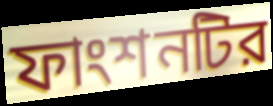
ফাংশনটির